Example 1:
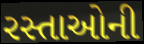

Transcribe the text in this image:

રસ્તાઓની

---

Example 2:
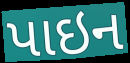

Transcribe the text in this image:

પાઇન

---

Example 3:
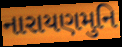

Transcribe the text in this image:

નારાયણમુનિ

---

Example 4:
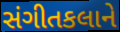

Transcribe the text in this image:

સંગીતકલાને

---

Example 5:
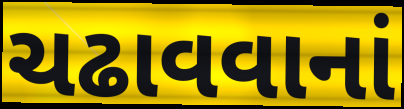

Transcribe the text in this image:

ચઢાવવાનાં